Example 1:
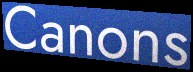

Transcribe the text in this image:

Canons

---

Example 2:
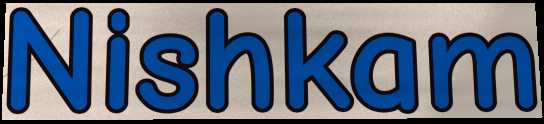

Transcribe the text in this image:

Nishkam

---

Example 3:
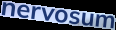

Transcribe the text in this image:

nervosum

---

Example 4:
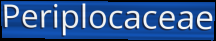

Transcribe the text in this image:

Periplocaceae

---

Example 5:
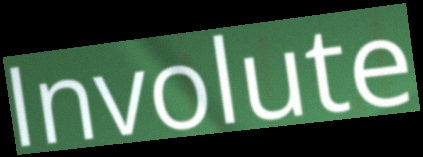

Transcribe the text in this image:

Involute